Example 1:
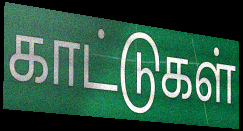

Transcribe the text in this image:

காட்டுகள்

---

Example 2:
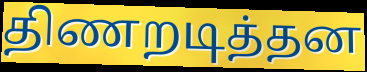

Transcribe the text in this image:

திணறடித்தன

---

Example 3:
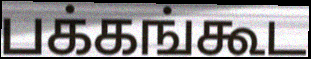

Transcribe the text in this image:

பக்கங்கூட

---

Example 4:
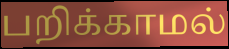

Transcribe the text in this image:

பறிக்காமல்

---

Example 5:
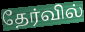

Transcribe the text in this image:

தேர்வில்